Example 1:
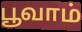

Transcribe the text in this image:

பூவாம்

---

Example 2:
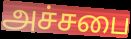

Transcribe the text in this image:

அச்சபை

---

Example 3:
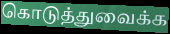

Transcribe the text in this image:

கொடுத்துவைக்க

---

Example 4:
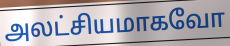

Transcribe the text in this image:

அலட்சியமாகவோ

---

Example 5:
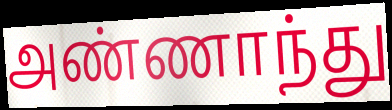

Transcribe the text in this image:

அண்ணாந்து